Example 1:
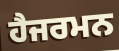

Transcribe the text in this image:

ਹੈਜਰਮਨ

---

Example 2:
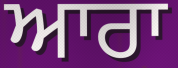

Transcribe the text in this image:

ਆਰਾ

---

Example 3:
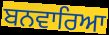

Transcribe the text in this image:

ਬਨਵਾਰਿਆ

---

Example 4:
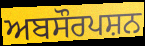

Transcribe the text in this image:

ਅਬਸੌਰਪਸ਼ਨ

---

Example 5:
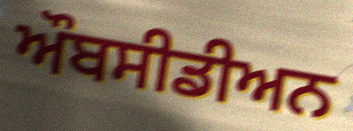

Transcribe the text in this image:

ਔਬਸੀਡੀਅਨ